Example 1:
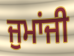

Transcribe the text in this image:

ਜੁਮਾਂਜੀ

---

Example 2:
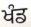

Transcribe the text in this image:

ਖੰਡ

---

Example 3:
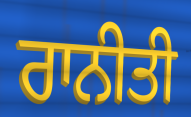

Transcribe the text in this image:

ਰਾਨੀਤੀ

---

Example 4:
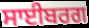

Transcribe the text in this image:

ਸਾਈਬਰਗ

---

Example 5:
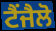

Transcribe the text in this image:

ਟੈਂਜੈਲੋ